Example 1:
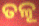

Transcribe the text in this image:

ତଳୂ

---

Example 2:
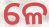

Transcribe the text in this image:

ଳେ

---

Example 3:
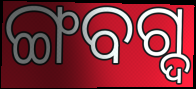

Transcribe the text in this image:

ଙ୍ଗବଗ୍ଦ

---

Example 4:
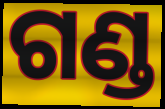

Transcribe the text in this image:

ଗଣ୍ଡ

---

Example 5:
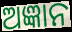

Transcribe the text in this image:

ଅଜ୍ଞାନ